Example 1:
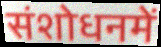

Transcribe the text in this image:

संशोधनमें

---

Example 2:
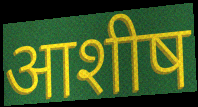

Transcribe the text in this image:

आशीष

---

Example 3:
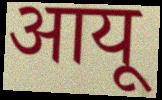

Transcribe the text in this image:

आयू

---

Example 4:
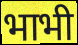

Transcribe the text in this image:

भाभी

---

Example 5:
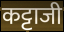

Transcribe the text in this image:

कट्टाजी